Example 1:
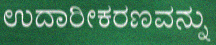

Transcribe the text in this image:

ಉದಾರೀಕರಣವನ್ನು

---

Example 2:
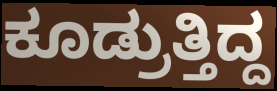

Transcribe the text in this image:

ಕೂಡ್ರುತ್ತಿದ್ದ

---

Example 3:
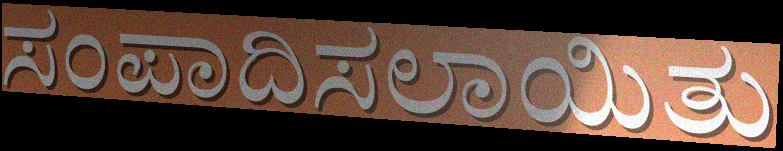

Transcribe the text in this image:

ಸಂಪಾದಿಸಲಾಯಿತು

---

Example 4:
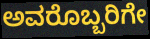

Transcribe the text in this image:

ಅವರೊಬ್ಬರಿಗೇ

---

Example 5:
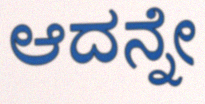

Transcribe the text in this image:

ಆದನ್ನೇ